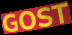
GOST